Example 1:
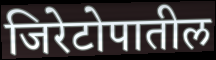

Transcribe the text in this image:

जिरेटोपातील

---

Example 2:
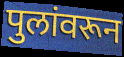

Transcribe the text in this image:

पुलांवरून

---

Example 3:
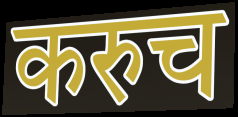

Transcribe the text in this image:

करुच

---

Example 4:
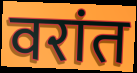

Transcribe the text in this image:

वरांत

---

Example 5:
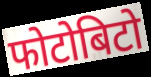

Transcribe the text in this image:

फोटोबिटो